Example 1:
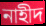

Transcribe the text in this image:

নাহীদ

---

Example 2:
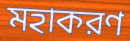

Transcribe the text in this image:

মহাকরণ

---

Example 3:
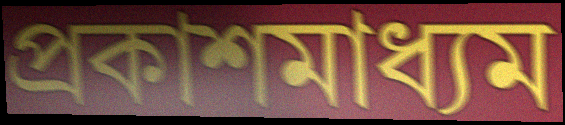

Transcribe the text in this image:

প্রকাশমাধ্যম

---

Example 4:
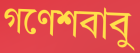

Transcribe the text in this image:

গণেশবাবু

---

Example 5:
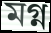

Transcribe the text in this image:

মগ্ন